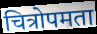
चित्रोपमता